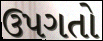
ઉપગતો